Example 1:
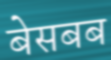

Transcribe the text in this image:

बेसबब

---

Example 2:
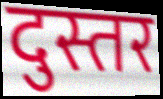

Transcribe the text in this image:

दुस्तर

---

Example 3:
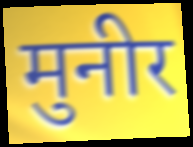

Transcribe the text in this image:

मुनीर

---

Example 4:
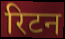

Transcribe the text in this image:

रिटन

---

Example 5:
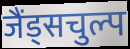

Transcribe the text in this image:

जैंड्सचुल्प